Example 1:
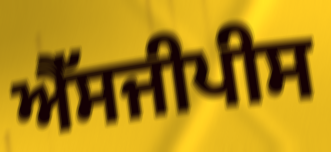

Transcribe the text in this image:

ਐੱਸਜੀਪੀਸ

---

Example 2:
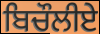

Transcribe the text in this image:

ਬਿਚੌਲੀਏ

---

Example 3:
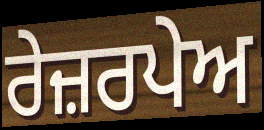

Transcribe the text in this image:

ਰੇਜ਼ਰਪੇਅ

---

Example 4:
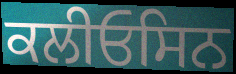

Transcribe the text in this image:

ਕਲੀਓਸਿਨ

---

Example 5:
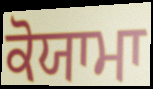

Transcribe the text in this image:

ਕੋਯਾਮਾ